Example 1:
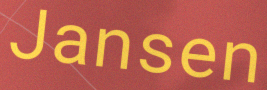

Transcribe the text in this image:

Jansen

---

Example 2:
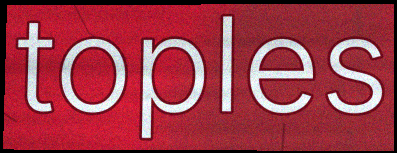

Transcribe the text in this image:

toples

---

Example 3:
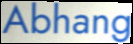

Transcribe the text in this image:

Abhang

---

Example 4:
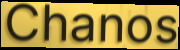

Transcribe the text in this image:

Chanos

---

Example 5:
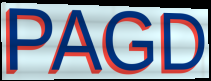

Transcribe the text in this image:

PAGD